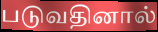
படுவதினால்